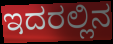
ಇದರಲ್ಲಿನ